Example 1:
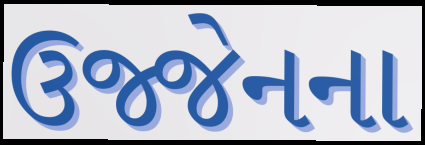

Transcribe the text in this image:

ઉજ્જેનના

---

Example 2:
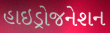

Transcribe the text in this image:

હાઇડ્રોજનેશન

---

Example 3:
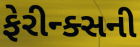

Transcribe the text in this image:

ફેરીન્ક્સની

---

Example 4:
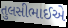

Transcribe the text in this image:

તુલસીભાઈએ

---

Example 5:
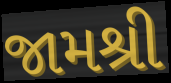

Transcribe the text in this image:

જામશ્રી